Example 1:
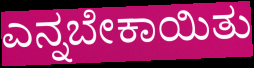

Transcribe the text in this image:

ಎನ್ನಬೇಕಾಯಿತು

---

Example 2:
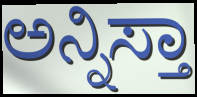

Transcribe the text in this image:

ಅನ್ನಿಸ್ತಾ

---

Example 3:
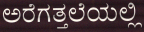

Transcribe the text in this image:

ಅರೆಗತ್ತಲೆಯಲ್ಲಿ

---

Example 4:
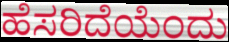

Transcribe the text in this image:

ಹೆಸರಿದೆಯೆಂದು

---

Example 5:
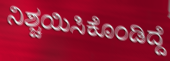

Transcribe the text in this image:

ನಿಶ್ಚಯಿಸಿಕೊಂಡಿದ್ದೆ